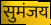
सुमंजय